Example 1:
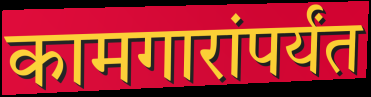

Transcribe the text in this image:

कामगारांपर्यंत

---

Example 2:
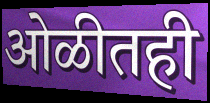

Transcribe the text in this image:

ओळीतही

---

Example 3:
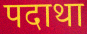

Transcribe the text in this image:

पदाथा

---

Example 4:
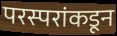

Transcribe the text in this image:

परस्परांकडून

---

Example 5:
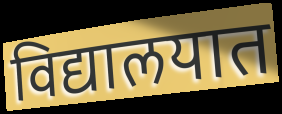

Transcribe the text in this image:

विद्यालयात